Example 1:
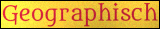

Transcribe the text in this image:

Geographisch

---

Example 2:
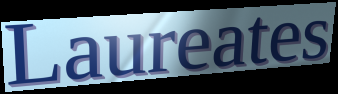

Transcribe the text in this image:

Laureates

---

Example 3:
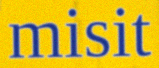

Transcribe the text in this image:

misit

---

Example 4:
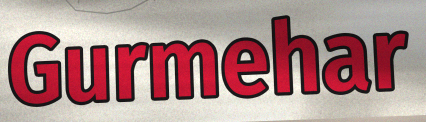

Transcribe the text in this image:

Gurmehar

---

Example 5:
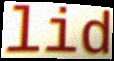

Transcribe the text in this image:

lid